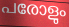
പരോളും